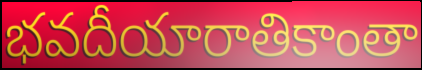
భవదీయారాతికాంతా